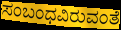
ಸಂಬಂಧವಿರುವಂತೆ